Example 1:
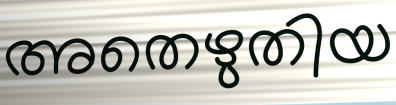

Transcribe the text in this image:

അതെഴുതിയ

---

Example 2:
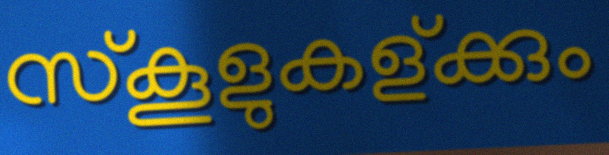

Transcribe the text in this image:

സ്കൂളുകള്ക്കും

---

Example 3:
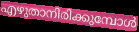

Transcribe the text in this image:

എഴുതാനിരിക്കുമ്പോൾ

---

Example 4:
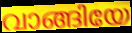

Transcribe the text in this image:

വാങ്ങിയേ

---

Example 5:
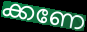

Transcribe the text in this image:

ക്കണേ